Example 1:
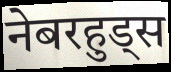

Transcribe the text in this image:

नेबरहुड्स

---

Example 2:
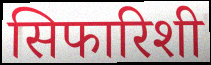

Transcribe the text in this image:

सिफारिशी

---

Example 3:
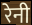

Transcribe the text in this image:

रेनी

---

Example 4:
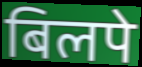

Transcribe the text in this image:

बिलपे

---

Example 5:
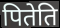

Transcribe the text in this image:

पितेति